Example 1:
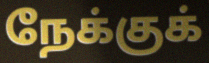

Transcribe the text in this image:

நேக்குக்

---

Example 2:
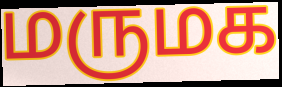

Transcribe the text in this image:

மருமக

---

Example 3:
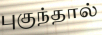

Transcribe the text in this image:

புகுந்தால்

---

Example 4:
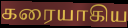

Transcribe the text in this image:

கரையாகிய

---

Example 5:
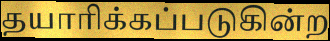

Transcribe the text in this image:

தயாரிக்கப்படுகின்ற